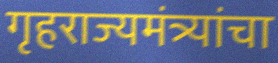
गृहराज्यमंत्र्यांचा